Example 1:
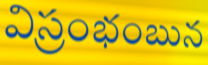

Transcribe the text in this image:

విస్రంభంబున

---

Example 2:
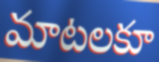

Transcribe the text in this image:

మాటలకూ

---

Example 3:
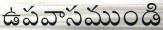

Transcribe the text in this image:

ఉపవాసముండి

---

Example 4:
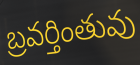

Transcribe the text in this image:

బ్రవర్తింతువు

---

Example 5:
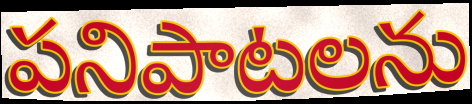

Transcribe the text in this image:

పనిపాటలను